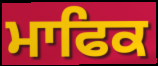
ਮਾਫਿਕ